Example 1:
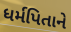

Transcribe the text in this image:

ધર્મપિતાને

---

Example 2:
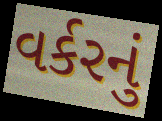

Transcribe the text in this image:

વર્કરનું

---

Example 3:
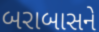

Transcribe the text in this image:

બરાબાસને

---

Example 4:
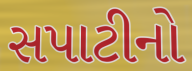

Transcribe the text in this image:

સપાટીનો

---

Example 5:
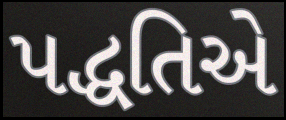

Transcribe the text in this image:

પદ્ધતિએ